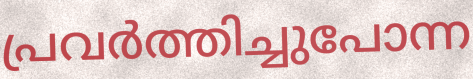
പ്രവർത്തിച്ചുപോന്ന